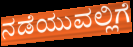
ನಡೆಯುವಲ್ಲಿಗೆ